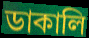
ডাকালি